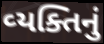
વ્‍યક્તિનું